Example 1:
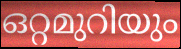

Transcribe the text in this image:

ഒറ്റമുറിയും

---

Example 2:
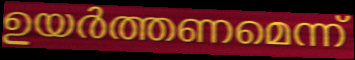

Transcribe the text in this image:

ഉയർത്തണമെന്ന്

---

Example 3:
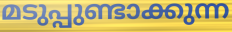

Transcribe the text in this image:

മടുപ്പുണ്ടാക്കുന്ന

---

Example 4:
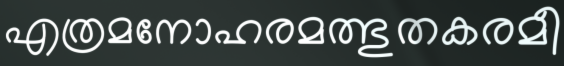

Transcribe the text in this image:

എത്രമനോഹരമത്ഭുതകരമീ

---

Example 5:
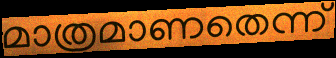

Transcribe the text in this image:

മാത്രമാണതെന്ന്